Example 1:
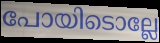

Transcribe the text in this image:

പോയിടൊല്ലേ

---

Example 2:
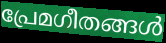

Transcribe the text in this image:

പ്രേമഗീതങ്ങൾ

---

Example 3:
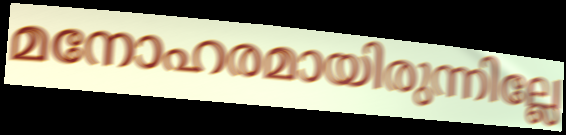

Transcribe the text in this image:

മനോഹരമായിരുന്നില്ലേ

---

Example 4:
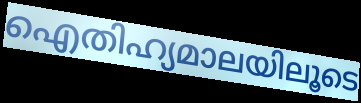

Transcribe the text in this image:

ഐതിഹ്യമാലയിലൂടെ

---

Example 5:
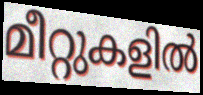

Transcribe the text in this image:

മീറ്റുകളിൽ